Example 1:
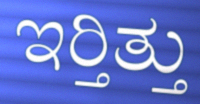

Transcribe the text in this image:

ಇರ್‍ತಿತ್ತು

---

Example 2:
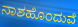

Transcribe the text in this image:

ನಾಶಹೊಂದುವೆ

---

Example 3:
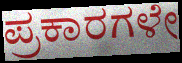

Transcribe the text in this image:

ಪ್ರಕಾರಗಳೇ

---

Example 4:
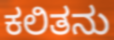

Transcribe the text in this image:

ಕಲಿತನು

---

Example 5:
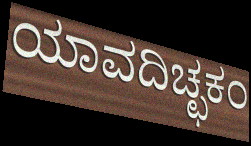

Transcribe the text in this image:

ಯಾವದಿಚ್ಛಕಂ